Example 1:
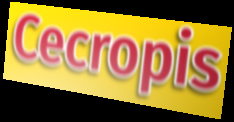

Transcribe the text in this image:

Cecropis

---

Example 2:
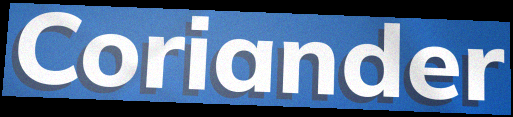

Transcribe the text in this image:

Coriander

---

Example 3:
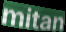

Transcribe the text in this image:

mitan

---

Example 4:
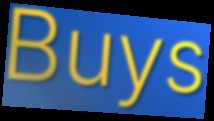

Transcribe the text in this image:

Buys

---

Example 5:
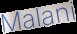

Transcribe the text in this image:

Malani